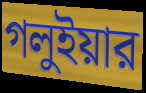
গলুইয়ার